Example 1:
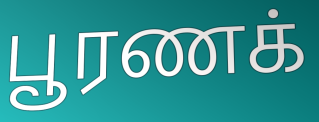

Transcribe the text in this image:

பூரணக்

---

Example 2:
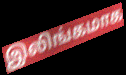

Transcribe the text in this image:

இலிங்கமாக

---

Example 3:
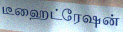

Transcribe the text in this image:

டீஹைட்ரேஷன்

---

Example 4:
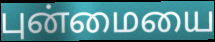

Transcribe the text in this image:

புன்மையை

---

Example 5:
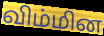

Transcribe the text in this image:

விம்மின